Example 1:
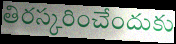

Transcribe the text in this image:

తిరస్కరించేందుకు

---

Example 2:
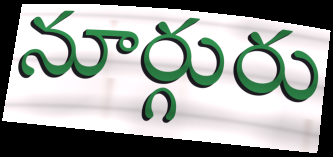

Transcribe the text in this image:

నూర్గురు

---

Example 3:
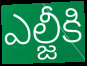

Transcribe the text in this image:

ఎల్జీకి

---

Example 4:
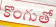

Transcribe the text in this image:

కొంగుతో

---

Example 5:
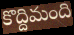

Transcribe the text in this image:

కొద్దిమంది